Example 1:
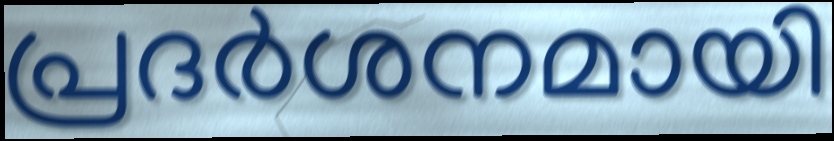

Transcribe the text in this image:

പ്രദർശനമായി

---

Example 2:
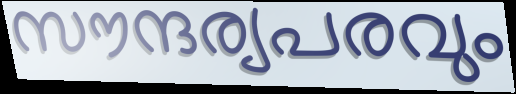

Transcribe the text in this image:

സൗന്ദര്യപരവും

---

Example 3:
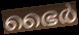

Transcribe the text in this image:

ഭൈർ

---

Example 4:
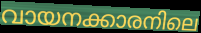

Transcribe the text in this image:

വായനക്കാരനിലെ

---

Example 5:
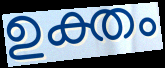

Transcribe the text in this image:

ഉക്തം